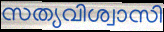
സത്യവിശ്വാസി